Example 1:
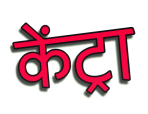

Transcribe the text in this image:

केंट्रा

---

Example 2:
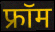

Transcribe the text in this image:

फ्रॉम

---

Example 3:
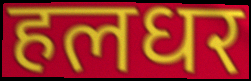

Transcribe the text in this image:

हलधर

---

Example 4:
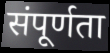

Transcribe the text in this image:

संपूर्णता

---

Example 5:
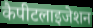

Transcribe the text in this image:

कैपीटलाइजेशन